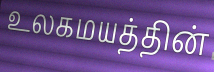
உலகமயத்தின்